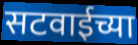
सटवाईच्या